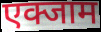
एक्जाम